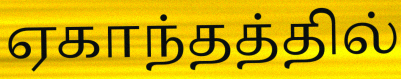
ஏகாந்தத்தில்